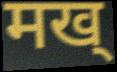
मख्